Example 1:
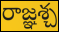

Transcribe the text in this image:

రాజ్ఞశ్చ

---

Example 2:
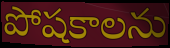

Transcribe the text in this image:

పోషకాలను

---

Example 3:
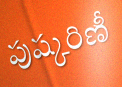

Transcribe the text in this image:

పుష్కరిణీ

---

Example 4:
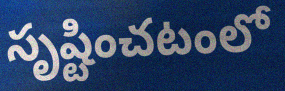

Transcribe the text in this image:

సృష్టించటంలో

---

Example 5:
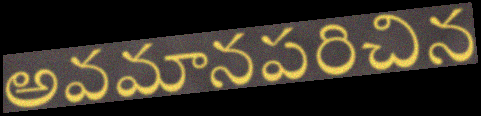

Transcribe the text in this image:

అవమానపరిచిన